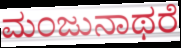
ಮಂಜುನಾಥರೆ